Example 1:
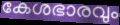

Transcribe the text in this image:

കേശഭാരവും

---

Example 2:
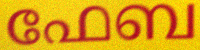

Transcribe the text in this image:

ഫേബ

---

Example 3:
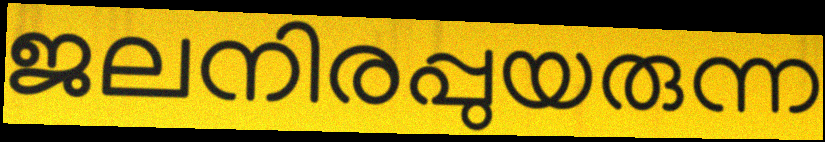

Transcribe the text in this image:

ജലനിരപ്പുയരുന്ന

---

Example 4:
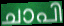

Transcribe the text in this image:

ചാപി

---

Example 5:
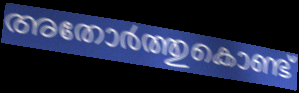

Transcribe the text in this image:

അതോർത്തുകൊണ്ട്